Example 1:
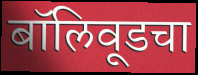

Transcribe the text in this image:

बॉलिवूडचा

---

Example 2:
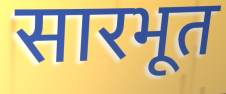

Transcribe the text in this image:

सारभूत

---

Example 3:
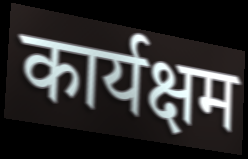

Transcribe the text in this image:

कार्यक्षम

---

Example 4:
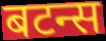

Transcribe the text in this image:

बटन्स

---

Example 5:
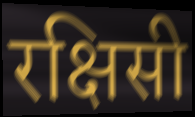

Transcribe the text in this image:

रक्षिसी